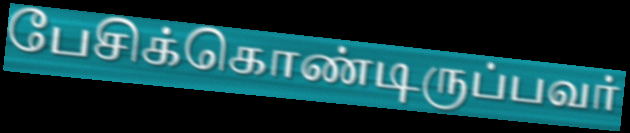
பேசிக்கொண்டிருப்பவர்